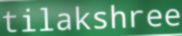
tilakshree